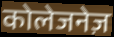
कोलेजनेज़